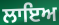
ਲਾਇਅ